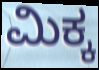
ಮಿಕ್ಕ